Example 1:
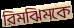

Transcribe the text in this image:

রিমঝিমকে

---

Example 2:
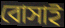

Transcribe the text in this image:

বোসাই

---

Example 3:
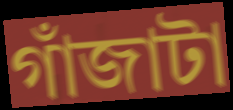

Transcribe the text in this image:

গাঁজাটা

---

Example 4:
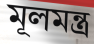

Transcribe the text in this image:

মূলমন্ত্র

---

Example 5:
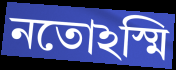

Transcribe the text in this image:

নতোঽস্মি